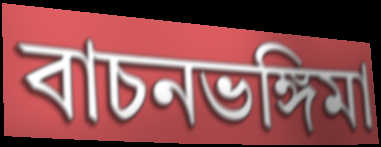
বাচনভঙ্গিমা